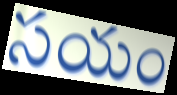
సయం